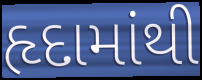
હૃદામાંથી